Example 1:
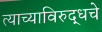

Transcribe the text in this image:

त्याच्याविरुद्धचे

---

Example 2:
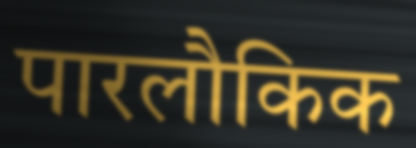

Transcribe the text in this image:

पारलौकिक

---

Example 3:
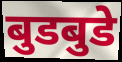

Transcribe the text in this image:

बुडबुडे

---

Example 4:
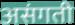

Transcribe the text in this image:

असंगती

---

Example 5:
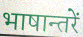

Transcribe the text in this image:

भाषान्तरें